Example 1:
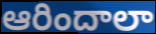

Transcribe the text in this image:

ఆరిందాలా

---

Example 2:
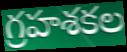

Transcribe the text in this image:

గ్రహశకల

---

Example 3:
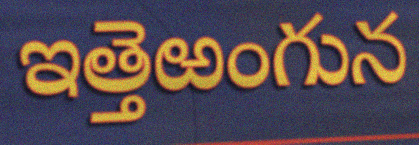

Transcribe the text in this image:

ఇత్తెఱంగున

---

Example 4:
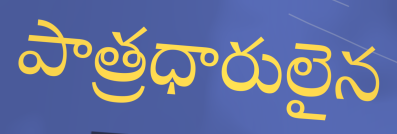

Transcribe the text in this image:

పాత్రధారులైన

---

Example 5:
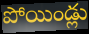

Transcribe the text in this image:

పోయిండ్లు